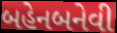
બહેનબનેવી